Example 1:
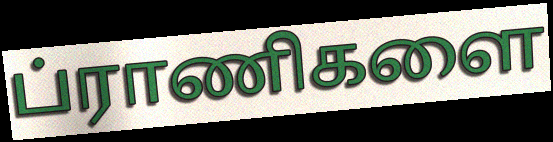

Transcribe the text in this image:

ப்ராணிகளை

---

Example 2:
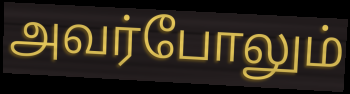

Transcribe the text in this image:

அவர்போலும்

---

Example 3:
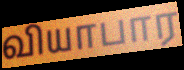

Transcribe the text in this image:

வியாபார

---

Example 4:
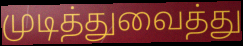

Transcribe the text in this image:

முடித்துவைத்து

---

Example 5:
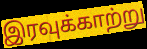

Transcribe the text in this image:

இரவுக்காற்று